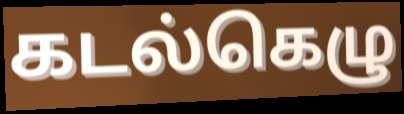
கடல்கெழு